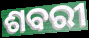
ଶବରୀ